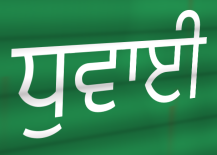
ਧੁਵਾਈ